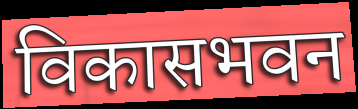
विकासभवन